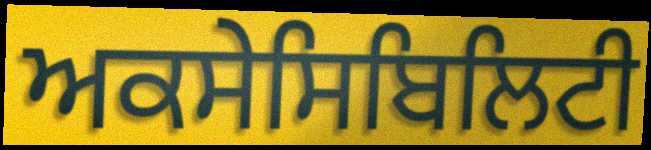
ਅਕਸੇਸਿਬਿਲਿਟੀ